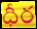
ధీర